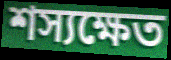
শস্যক্ষেত